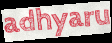
adhyaru